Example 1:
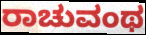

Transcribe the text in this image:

ರಾಚುವಂಥ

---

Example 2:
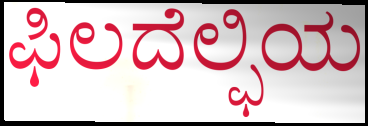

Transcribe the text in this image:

ಫಿಲದೆಲ್ಫಿಯ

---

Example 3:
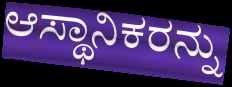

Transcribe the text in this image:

ಆಸ್ಥಾನಿಕರನ್ನು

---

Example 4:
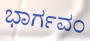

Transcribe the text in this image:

ಭಾರ್ಗವಂ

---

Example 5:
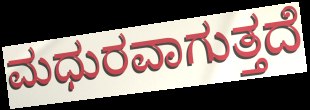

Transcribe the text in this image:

ಮಧುರವಾಗುತ್ತದೆ